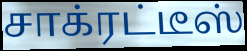
சாக்ரட்டீஸ்